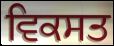
ਵਿਕਸਤ